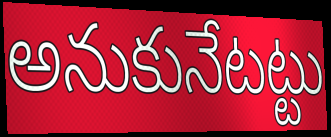
అనుకునేటట్టు